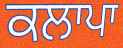
ਕਲਾਪਾ